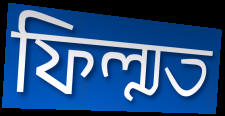
ফিল্মত